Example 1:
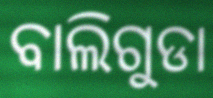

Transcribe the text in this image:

ବାଲିଗୁଡା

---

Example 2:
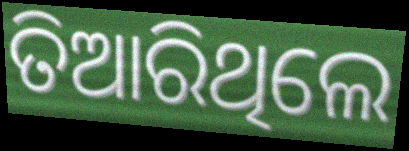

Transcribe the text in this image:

ତିଆରିଥିଲେ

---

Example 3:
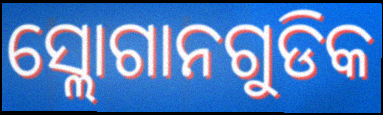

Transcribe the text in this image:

ସ୍ଲୋଗାନଗୁଡିକ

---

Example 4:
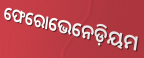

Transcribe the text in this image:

ଫେରୋଭେନେଡ଼ିୟମ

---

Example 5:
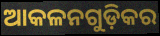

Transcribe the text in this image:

ଆକଳନଗୁଡ଼ିକର